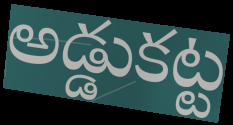
అడ్డుకట్ట